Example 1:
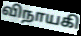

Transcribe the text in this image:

விநாயகி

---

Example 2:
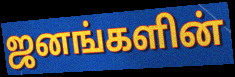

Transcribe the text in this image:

ஜனங்களின்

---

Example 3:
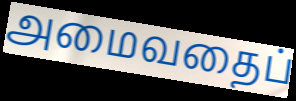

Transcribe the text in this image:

அமைவதைப்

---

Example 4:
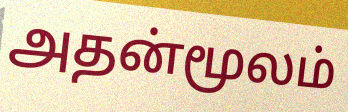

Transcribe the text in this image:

அதன்மூலம்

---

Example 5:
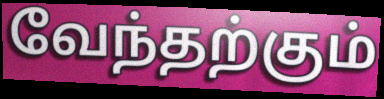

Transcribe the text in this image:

வேந்தற்கும்